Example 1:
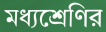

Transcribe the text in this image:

মধ্যশ্রেণির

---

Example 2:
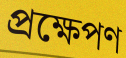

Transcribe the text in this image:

প্রক্ষেপণ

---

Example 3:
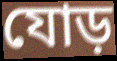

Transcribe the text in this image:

যোড়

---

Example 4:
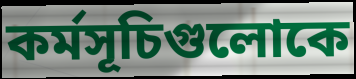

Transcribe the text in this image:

কর্মসূচিগুলোকে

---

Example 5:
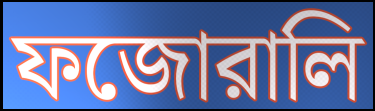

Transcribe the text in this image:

ফজোরালি